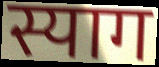
स्याग